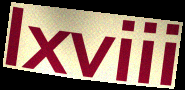
Ixviii